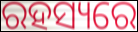
ରହସ୍ୟରେ